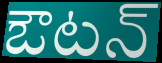
ఔటన్